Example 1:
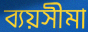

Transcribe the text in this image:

ব্যয়সীমা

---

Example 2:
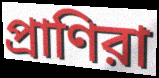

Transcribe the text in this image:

প্রাণিরা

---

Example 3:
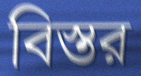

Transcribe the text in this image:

বিস্তর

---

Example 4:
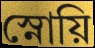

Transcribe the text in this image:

স্নোয়ি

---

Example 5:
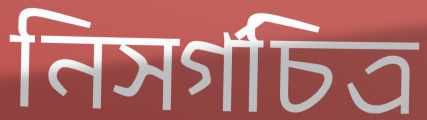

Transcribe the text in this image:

নিসর্গচিত্র